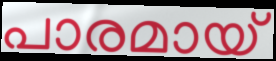
പാരമായ്